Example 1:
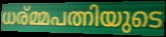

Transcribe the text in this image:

ധര്മ്മപത്നിയുടെ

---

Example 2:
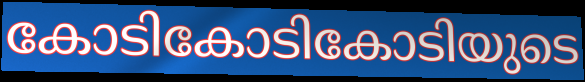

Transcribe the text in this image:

കോടികോടികോടിയുടെ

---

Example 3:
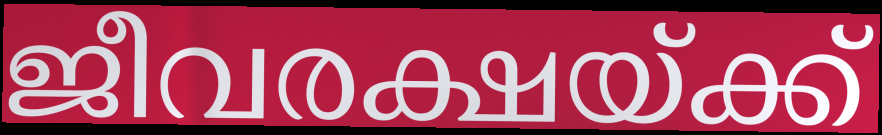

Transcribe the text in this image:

ജീവരക്ഷയ്ക്ക്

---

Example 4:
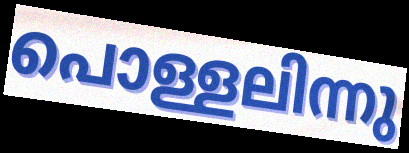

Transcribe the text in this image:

പൊള്ളലിന്നു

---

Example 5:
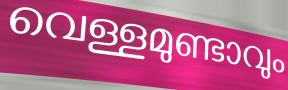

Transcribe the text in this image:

വെള്ളമുണ്ടാവും